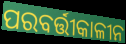
ପରବର୍ତ୍ତୀକାଳୀନ